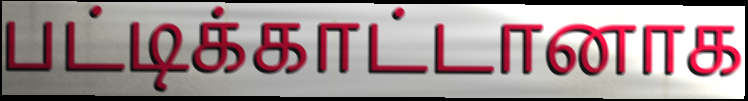
பட்டிக்காட்டானாக